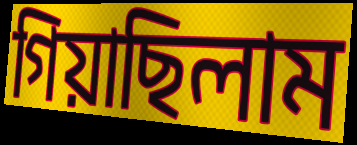
গিয়াছিলাম